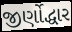
જીર્ણોદ્ધાર